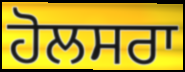
ਹੋਲਸਰਾ